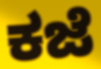
ಕಜೆ